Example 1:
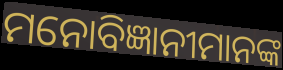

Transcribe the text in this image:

ମନୋବିଜ୍ଞାନୀମାନଙ୍କ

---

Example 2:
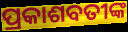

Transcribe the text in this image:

ପ୍ରକାଶବତୀଙ୍କ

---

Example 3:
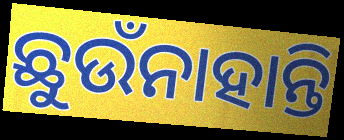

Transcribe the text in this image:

ଛୁଉଁନାହାନ୍ତି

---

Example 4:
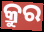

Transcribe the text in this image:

କ୍ରୁର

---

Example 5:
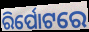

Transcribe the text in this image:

ରିର୍ପୋଟରେ